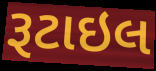
રૂટાઇલ